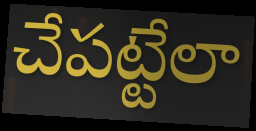
చేపట్టేలా